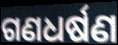
ଗଣଧର୍ଷଣ